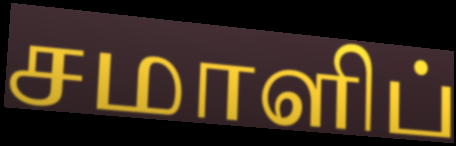
சமாளிப்